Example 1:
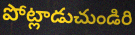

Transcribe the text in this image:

పోట్లాడుచుండిరి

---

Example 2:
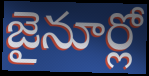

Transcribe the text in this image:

జైనూర్లో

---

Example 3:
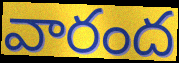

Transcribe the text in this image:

వారంద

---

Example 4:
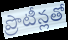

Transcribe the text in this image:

ప్రొటీన్లతో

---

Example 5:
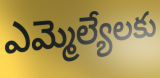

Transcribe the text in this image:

ఎమ్మెల్యేలకు